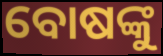
ବୋଷଙ୍କୁ